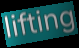
lifting